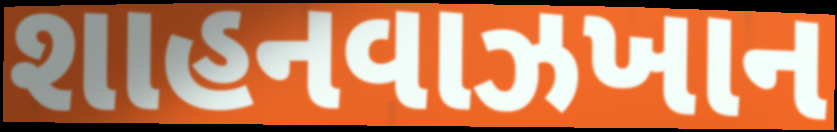
શાહનવાઝખાન